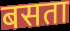
बसता